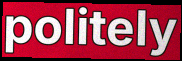
politely